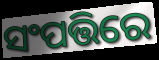
ସଂପତ୍ତିରେ